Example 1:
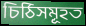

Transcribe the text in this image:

চিঠিসমূহত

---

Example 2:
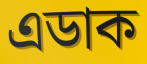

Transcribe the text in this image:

এডাক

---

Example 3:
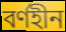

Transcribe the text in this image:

বৰ্ণহীন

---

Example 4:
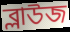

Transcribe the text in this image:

ব্লাউজ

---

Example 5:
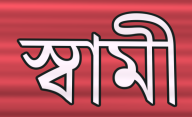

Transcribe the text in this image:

স্বামী